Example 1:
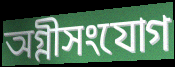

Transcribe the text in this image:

অগ্নীসংযোগ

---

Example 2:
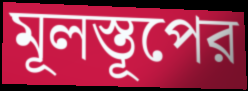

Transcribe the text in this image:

মূলস্তূপের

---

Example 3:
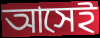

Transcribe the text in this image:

আসেই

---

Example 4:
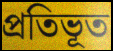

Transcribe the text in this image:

প্রতিভূত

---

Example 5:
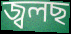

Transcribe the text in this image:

জ্বলছ